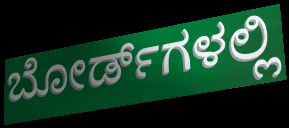
ಬೋರ್ಡ್‌ಗಳಲ್ಲಿ